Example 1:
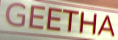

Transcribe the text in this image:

GEETHA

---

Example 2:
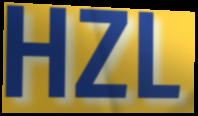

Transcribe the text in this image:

HZL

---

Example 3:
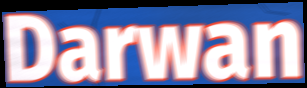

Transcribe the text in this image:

Darwan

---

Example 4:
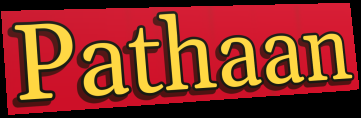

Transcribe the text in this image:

Pathaan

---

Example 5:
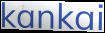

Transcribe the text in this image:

kankai